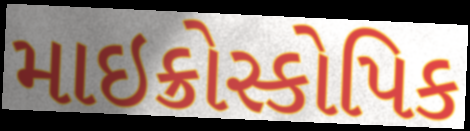
માઇક્રોસ્કોપિક